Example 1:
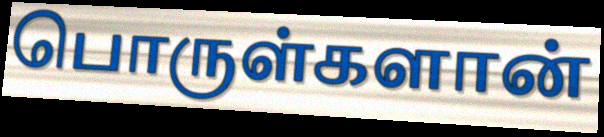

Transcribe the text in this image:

பொருள்களான்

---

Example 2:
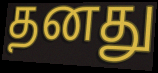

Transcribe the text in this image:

தனது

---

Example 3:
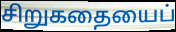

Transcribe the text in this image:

சிறுகதையைப்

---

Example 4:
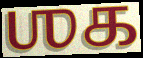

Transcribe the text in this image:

ஶக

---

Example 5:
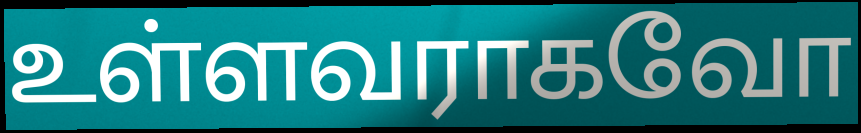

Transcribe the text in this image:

உள்ளவராகவோ